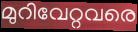
മുറിവേറ്റവരെ